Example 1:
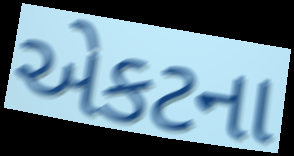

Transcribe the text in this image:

એકટના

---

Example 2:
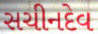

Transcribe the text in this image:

સચીનદેવ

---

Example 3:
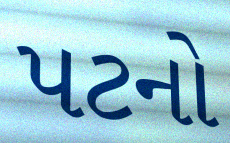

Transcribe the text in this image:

પટનો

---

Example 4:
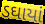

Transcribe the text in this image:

ડઘાયાં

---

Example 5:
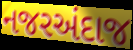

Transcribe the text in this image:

નજરઅંદાજ